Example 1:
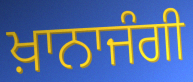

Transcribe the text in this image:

ਖ਼ਾਨਾਜੰਗੀ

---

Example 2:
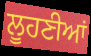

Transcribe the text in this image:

ਲੂਹਣੀਆਂ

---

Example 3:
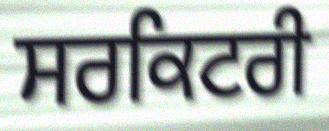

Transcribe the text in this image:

ਸਰਕਿਟਰੀ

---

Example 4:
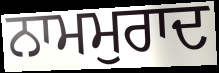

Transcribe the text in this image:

ਨਾਮਮੁਰਾਦ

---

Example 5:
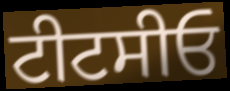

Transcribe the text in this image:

ਟੀਟਸੀਓ